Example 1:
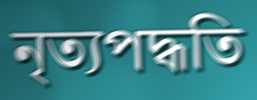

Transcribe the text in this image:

নৃত্যপদ্ধতি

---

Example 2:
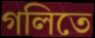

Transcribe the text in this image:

গলিতে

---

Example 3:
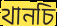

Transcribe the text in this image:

থানচি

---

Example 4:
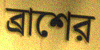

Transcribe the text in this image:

ব্রাশের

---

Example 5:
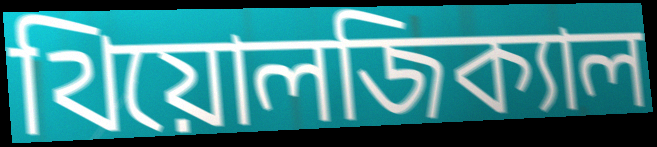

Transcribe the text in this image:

থিয়োলজিক্যাল